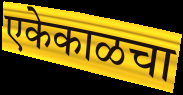
एकेकाळचा